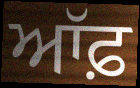
ਆੱਫ਼